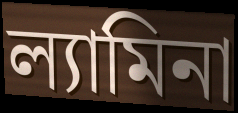
ল্যামিনা